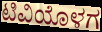
ಟಿವಿಯೊಳಗ